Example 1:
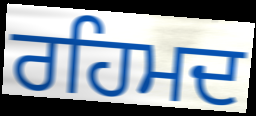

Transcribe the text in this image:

ਰਹਿਮਦ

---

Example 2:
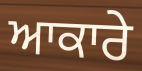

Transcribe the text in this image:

ਆਕਾਰੇ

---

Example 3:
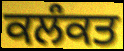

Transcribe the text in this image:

ਕਲੰਕਤ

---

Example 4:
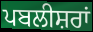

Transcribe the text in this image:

ਪਬਲੀਸ਼ਰਾਂ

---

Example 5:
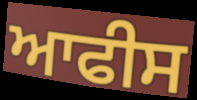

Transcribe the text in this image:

ਆਫੀਸ